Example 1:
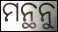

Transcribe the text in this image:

ମନ୍ଥନୁ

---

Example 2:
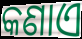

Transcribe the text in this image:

କଣାଏ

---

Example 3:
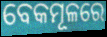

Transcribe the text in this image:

ବେକମୂଳରେ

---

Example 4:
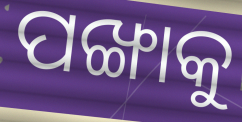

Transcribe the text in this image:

ପଙ୍ଖାକୁ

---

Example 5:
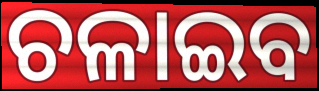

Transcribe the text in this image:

ଚଳାଇବ